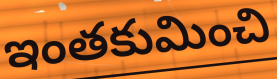
ఇంతకుమించి